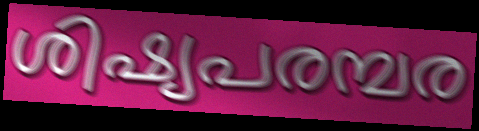
ശിഷ്യപരമ്പര